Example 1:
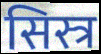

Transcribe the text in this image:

सिस्त्र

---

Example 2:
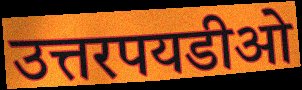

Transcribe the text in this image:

उत्तरपयडीओ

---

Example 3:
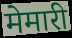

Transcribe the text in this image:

मेमारी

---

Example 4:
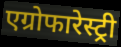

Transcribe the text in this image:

एग्रोफारेस्ट्री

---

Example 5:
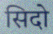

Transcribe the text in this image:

सिदो